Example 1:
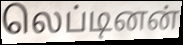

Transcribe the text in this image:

லெப்டினன்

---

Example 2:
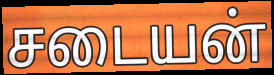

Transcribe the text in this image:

சடையன்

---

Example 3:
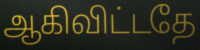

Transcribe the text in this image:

ஆகிவிட்டதே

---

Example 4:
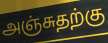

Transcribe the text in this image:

அஞ்சுதற்கு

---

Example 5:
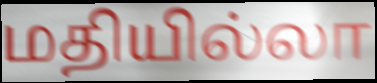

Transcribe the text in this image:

மதியில்லா